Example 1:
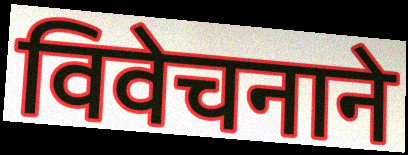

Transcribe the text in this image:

विवेचनाने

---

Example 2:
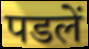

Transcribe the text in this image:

पडलें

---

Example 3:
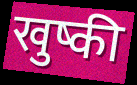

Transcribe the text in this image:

खुष्की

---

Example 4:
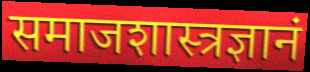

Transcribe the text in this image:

समाजशास्त्रज्ञानं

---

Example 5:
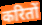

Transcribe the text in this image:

करितों